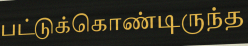
பட்டுக்கொண்டிருந்த